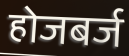
होजबर्ज